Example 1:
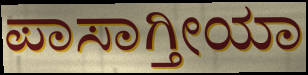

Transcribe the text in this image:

ಪಾಸಾಗ್ತೀಯಾ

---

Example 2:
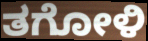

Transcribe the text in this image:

ತಗೋಳಿ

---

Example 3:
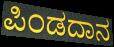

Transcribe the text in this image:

ಪಿಂಡದಾನ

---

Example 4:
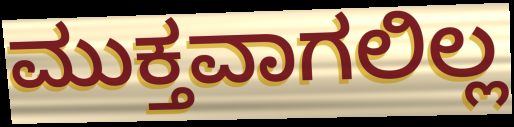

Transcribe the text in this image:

ಮುಕ್ತವಾಗಲಿಲ್ಲ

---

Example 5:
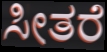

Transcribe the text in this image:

ಸೀತರೆ